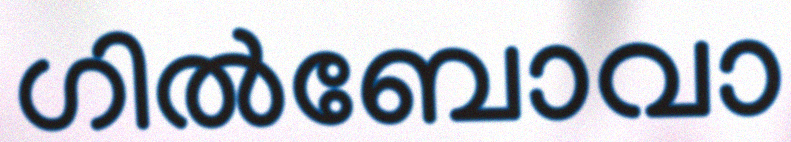
ഗിൽബോവാ